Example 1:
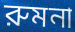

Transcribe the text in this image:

রুমনা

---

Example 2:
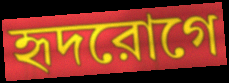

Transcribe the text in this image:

হৃদরোগে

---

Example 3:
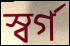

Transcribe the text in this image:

স্বর্গ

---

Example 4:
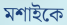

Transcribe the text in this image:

মশাইকে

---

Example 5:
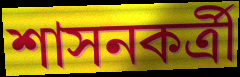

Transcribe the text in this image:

শাসনকর্ত্রী